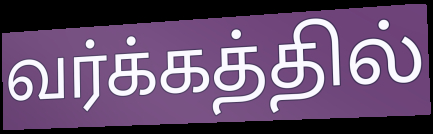
வர்க்கத்தில்